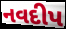
નવદીપ